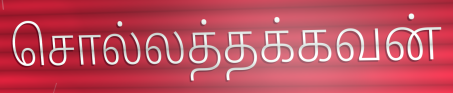
சொல்லத்தக்கவன்